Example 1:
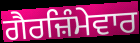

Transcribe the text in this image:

ਗੈਰਜ਼ਿੰਮੇਵਾਰ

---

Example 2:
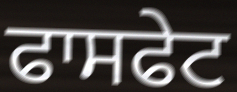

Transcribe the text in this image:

ਫਾਸਫੇਟ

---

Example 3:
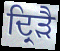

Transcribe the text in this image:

ਦ੍ਰਿੜੈ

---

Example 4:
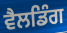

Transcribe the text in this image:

ਵੈਲਡਿੰਗ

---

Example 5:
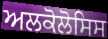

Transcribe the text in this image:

ਅਲਕੋਲੋਸਿਸ